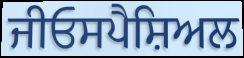
ਜੀਓਸਪੈਸ਼ਿਅਲ